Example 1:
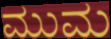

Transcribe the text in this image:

ಮುಮ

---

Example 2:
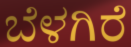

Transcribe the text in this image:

ಬೆಳಗಿರೆ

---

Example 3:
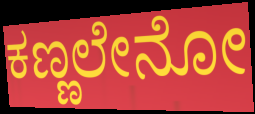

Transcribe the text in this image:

ಕಣ್ಣಲೇನೋ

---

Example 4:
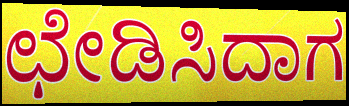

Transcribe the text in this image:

ಛೇಡಿಸಿದಾಗ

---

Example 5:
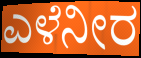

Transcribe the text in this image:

ಎಳೆನೀರ